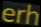
erh